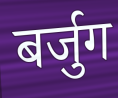
बर्जुग